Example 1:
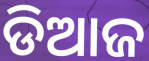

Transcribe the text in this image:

ଡିଆଜ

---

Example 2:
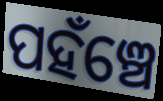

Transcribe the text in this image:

ପହଁଞ୍ଚେ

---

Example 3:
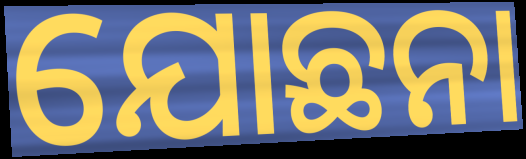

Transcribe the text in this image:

ଯୋଛନା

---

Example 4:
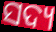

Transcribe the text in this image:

ସଦ୍ଯ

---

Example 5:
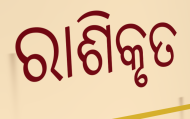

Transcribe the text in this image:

ରାଶିକୃତ